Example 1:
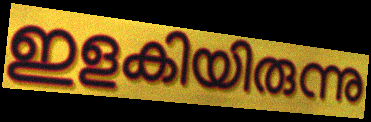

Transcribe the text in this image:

ഇളകിയിരുന്നു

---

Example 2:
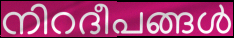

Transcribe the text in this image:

നിറദീപങ്ങൾ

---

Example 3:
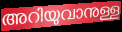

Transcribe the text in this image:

അറിയുവാനുള്ള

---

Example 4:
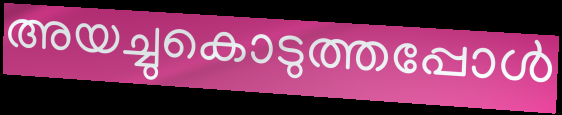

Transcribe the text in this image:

അയച്ചുകൊടുത്തപ്പോൾ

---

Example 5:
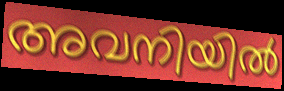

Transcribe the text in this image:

അവനിയിൽ